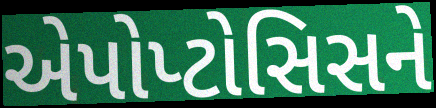
એપોપ્ટોસિસને